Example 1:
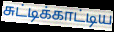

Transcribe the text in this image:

சுட்டிக்காட்டிய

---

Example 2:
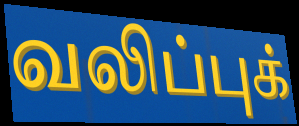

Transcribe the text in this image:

வலிப்புக்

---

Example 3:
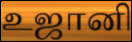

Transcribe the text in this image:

உஜானி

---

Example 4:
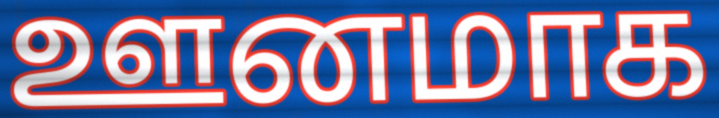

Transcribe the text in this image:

ஊனமாக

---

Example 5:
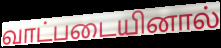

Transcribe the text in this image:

வாட்படையினால்